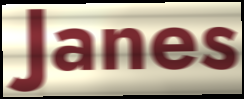
Janes